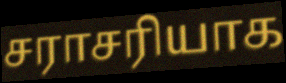
சராசரியாக